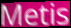
Metis